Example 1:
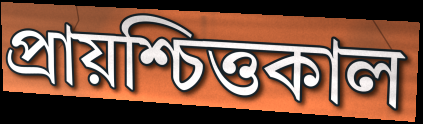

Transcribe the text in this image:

প্রায়শ্চিত্তকাল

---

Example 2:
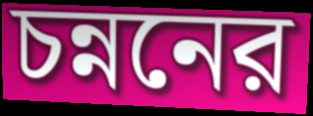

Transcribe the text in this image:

চন্ননের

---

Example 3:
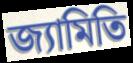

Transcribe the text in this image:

জ্যামিতি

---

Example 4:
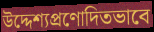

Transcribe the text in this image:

উদ্দেশ্যপ্রণোদিতভাবে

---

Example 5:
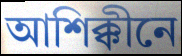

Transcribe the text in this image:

আশিক্কীনে